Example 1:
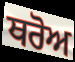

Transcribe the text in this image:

ਥਰੋਅ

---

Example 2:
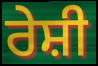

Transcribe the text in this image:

ਰੇਸ਼ੀ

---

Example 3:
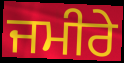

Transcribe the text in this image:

ਜਮੀਰੇ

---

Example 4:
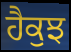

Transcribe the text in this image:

ਹੈਕੁਝ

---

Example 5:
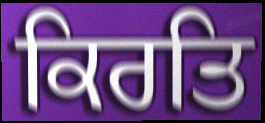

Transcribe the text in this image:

ਕਿਰਤਿ